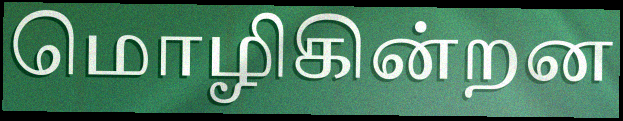
மொழிகின்றன